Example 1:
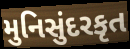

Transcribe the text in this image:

મુનિસુંદરકૃત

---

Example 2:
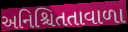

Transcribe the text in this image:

અનિશ્ચિતતાવાળા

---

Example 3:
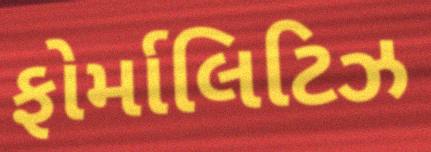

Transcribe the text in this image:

ફોર્માલિટિઝ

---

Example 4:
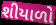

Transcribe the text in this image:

શીયાળો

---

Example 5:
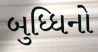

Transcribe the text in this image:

બુધ્ધિનો